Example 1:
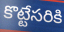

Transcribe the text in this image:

కొట్టేసరికి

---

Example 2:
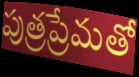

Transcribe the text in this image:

పుత్రప్రేమతో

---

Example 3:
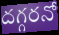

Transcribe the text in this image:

దగ్గరనో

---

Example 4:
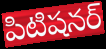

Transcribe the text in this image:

పిటిషనర్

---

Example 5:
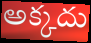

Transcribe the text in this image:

అక్కదు